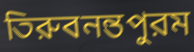
তিরুবনন্তপুরম